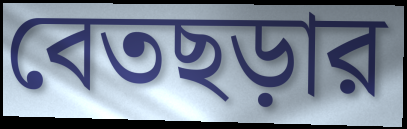
বেতছড়ার